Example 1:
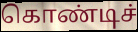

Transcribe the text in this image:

கொண்டிச்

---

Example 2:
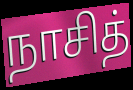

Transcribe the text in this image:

நாசித்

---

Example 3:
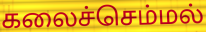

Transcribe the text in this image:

கலைச்செம்மல்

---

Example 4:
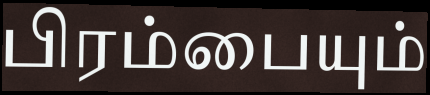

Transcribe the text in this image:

பிரம்பையும்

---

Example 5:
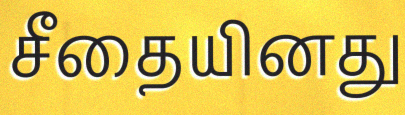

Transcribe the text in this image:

சீதையினது